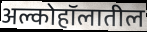
अल्कोहॉलातील